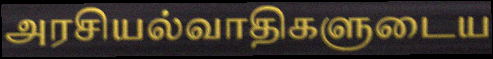
அரசியல்வாதிகளுடைய